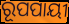
ରୂପପାୟୀ